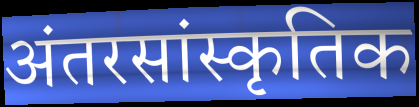
अंतरसांस्कृतिक